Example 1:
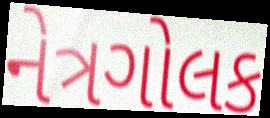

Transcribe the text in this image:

નેત્રગોલક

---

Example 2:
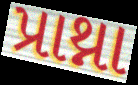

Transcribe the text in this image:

પ્રાથ્ના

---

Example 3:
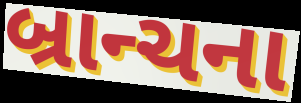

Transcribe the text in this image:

બ્રાન્ચના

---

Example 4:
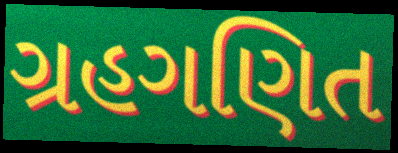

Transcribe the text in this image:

ગ્રહગણિત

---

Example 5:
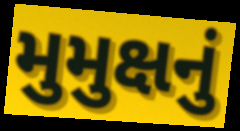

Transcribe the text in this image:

મુમુક્ષનું